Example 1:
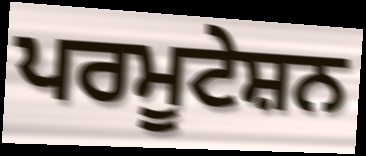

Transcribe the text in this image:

ਪਰਮੂਟੇਸ਼ਨ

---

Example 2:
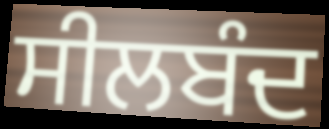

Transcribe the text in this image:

ਸੀਲਬੰਦ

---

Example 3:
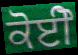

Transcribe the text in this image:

ਕੋਈੋ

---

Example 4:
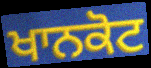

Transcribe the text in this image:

ਖਾਨਕੋਟ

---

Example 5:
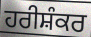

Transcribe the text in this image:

ਹਰੀਸ਼ੰਕਰ